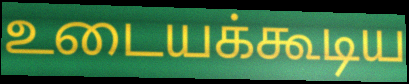
உடையக்கூடிய